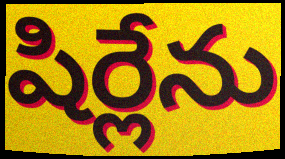
షిర్లేను